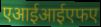
एआईआईएफए